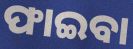
ଫାଇବା